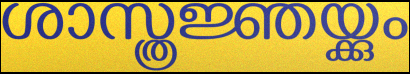
ശാസ്ത്രജ്ഞയ്ക്കും